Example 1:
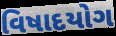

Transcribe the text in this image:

વિષાદયોગ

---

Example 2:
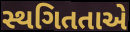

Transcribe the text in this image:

સ્થગિતતાએ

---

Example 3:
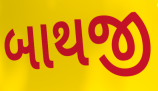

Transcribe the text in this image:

બાથજી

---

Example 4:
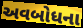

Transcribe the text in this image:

અવબોધના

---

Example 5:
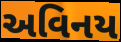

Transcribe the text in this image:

અવિનય